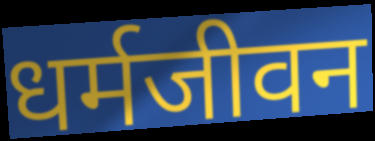
धर्मजीवन